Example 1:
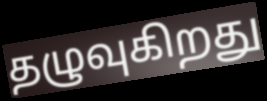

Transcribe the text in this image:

தழுவுகிறது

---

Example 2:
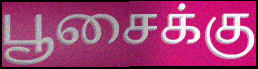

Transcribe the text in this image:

பூசைக்கு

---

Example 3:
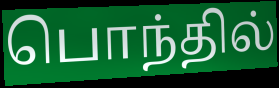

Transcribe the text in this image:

பொந்தில்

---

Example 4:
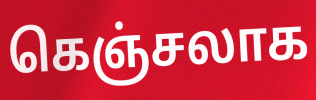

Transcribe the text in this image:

கெஞ்சலாக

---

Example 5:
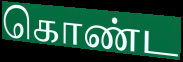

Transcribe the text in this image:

கொண்ட